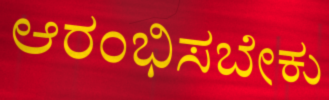
ಆರಂಭಿಸಬೇಕು